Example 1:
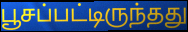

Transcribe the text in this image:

பூசப்பட்டிருந்தது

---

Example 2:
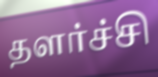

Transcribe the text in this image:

தளர்ச்சி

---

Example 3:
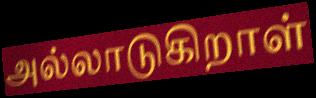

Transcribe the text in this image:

அல்லாடுகிறாள்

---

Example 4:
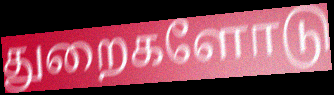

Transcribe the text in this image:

துறைகளோடு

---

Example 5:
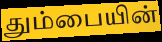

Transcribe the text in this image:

தும்பையின்